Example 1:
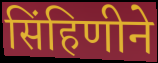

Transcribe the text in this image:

सिंहिणीने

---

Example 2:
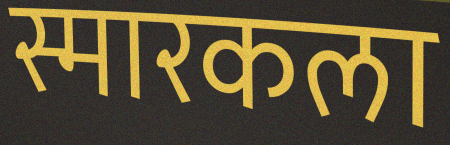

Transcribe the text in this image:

स्मारकला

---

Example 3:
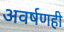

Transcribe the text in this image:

अवर्षणही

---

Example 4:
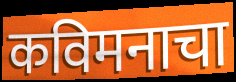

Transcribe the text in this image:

कविमनाचा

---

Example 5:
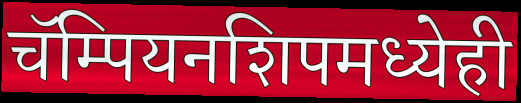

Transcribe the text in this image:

चॅम्पियनशिपमध्येही